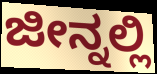
ಜೀನ್ನಲ್ಲಿ